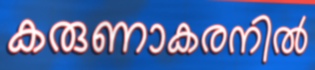
കരുണാകരനിൽ